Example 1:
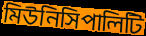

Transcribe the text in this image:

মিউনিসিপালিটি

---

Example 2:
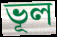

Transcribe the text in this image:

ভূল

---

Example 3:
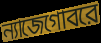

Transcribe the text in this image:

ন্যাজেগোবরে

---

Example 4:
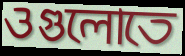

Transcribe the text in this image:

ওগুলোতে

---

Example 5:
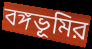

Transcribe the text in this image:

বঙ্গভূমির